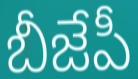
బీజేపీ